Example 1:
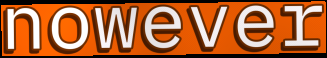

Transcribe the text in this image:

nowever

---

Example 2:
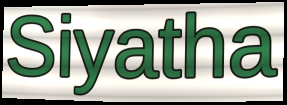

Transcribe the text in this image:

Siyatha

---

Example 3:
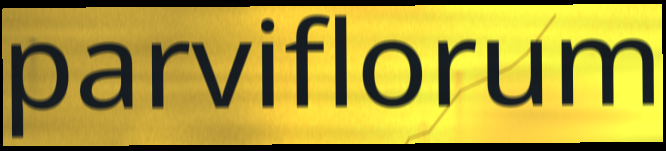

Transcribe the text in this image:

parviflorum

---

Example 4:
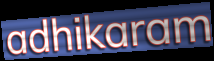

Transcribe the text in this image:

adhikaram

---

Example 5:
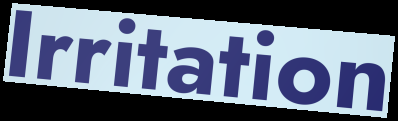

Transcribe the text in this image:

Irritation